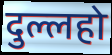
दुल्लहो